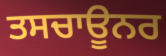
ਤਸਚਾਊਨਰ